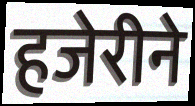
हजेरीने